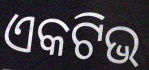
ଏକଟିଭ